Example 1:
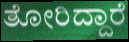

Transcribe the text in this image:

ತೋರಿದ್ದಾರೆ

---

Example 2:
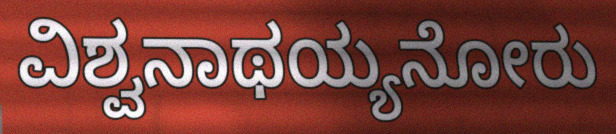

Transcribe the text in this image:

ವಿಶ್ವನಾಥಯ್ಯನೋರು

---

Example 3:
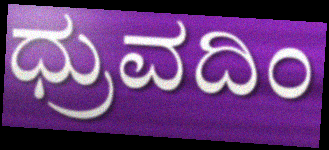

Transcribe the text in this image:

ಧ್ರುವದಿಂ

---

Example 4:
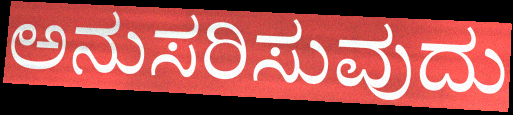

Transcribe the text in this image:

ಅನುಸರಿಸುವುದು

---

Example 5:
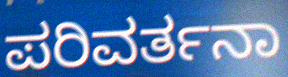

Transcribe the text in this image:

ಪರಿವರ್ತನಾ